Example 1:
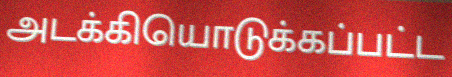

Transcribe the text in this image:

அடக்கியொடுக்கப்பட்ட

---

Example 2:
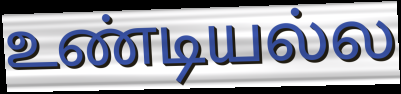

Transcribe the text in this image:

உண்டியல்ல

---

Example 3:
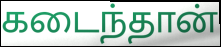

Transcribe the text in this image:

கடைந்தான்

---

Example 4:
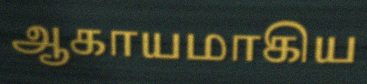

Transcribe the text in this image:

ஆகாயமாகிய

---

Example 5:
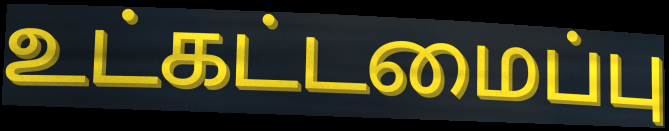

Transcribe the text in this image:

உட்கட்டமைப்பு